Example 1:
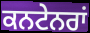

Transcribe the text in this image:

ਕਨਟੇਨਰਾਂ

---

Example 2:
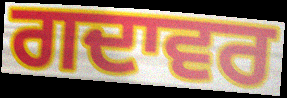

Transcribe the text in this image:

ਗਦਾਵਰ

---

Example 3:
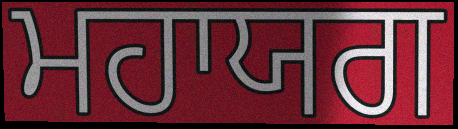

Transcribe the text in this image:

ਮਹਾਯਗ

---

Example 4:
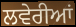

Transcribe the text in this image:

ਲਵੇਰੀਆਂ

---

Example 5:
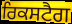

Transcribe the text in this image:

ਰਿਕਸਟੈਗ